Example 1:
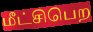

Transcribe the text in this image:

மீட்சிபெற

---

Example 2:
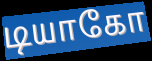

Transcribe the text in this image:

டியாகோ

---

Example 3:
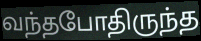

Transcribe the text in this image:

வந்தபோதிருந்த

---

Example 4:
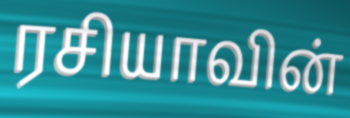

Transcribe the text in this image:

ரசியாவின்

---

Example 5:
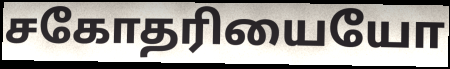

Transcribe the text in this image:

சகோதரியையோ